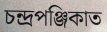
চন্দ্ৰপঞ্জিকাত